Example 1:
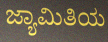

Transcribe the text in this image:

ಜ್ಯಾಮಿತಿಯ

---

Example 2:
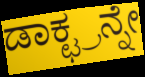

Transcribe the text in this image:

ಡಾಕ್ಟ್ರನ್ನೇ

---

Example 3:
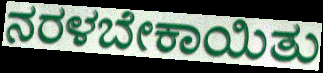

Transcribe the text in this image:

ನರಳಬೇಕಾಯಿತು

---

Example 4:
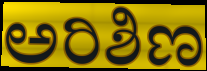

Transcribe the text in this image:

ಅರಿಶಿಣ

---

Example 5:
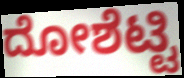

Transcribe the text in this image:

ದೋಶೆಟ್ಟಿ